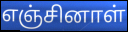
எஞ்சினாள்